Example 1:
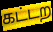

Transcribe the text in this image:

கட்டற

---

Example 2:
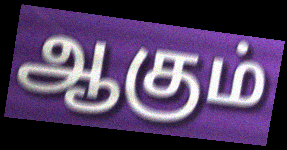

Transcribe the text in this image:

ஆகும்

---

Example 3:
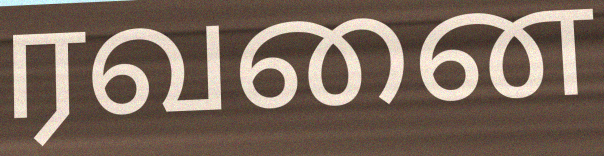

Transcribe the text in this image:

ரவனை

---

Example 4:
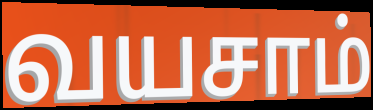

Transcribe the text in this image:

வயசாம்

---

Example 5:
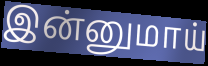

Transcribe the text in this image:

இன்னுமாய்